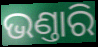
ଭଣ୍ତାରି